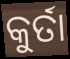
କୁର୍ତା